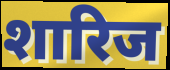
शारिज